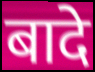
बादे